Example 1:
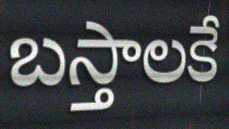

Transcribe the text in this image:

బస్తాలకే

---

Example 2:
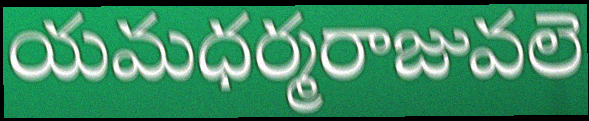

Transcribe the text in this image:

యమధర్మరాజువలె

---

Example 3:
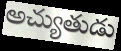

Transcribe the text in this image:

అచ్యుతుడు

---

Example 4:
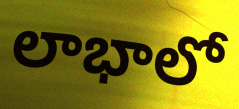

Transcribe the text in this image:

లాభాలో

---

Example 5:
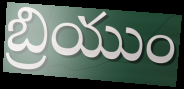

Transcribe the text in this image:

బ్రియుం